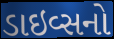
ડાઇવ્સનો